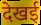
देखई